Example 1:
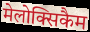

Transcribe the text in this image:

मेलोक्सिकैम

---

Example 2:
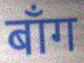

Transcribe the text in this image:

बाँग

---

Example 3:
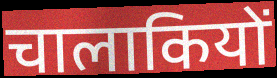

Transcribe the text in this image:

चालाकियों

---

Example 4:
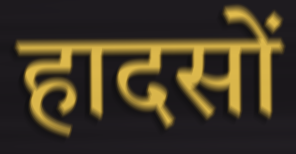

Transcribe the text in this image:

हादसों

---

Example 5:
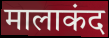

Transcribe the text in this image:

मालाकंद